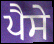
ਪੈਸੇ